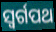
ସ୍ୱର୍ଗପଥ